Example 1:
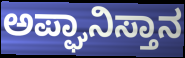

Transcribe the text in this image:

ಅಪ್ಘಾನಿಸ್ತಾನ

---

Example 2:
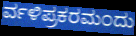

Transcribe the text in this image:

ರ್ವಳಿಪ್ರಕರಮಂದು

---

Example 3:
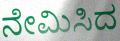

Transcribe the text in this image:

ನೇಮಿಸಿದ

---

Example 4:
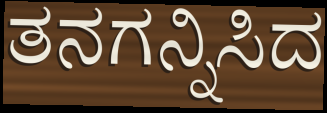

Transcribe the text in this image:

ತನಗನ್ನಿಸಿದ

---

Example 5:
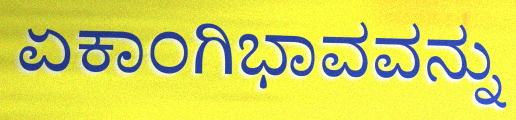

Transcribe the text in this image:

ಏಕಾಂಗಿಭಾವವನ್ನು